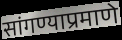
सांगण्याप्रमाणे